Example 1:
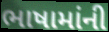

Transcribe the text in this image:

ભાષામાંની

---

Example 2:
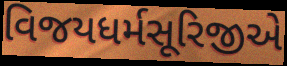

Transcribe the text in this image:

વિજયધર્મસૂરિજીએ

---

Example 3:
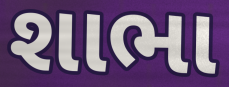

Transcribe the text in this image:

શાભા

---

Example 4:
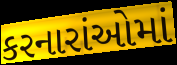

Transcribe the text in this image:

કરનારાંઓમાં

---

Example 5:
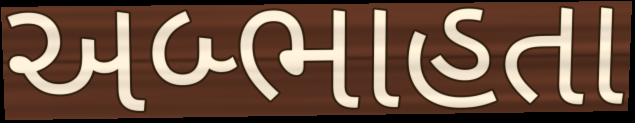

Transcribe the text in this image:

અબ્ભાહતા